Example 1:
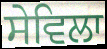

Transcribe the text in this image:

ਸੇਵਿਲਾ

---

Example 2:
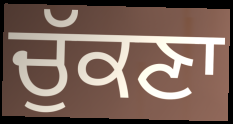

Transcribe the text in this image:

ਚੁੱਕਣਾ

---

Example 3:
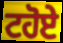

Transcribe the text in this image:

ਟਹੋਏ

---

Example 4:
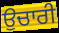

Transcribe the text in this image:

ਉਚਾਰੀ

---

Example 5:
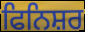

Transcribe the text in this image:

ਫਿਨਿਸ਼ਰ